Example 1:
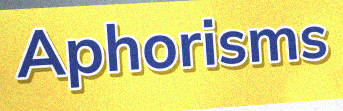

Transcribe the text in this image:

Aphorisms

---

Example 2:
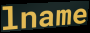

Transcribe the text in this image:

lname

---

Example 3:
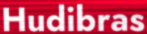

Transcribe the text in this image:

Hudibras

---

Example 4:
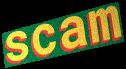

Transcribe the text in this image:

scam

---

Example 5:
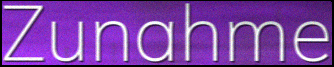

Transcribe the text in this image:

Zunahme